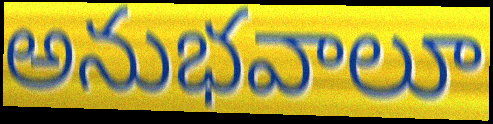
అనుభవాలూ